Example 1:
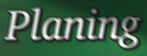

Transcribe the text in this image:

Planing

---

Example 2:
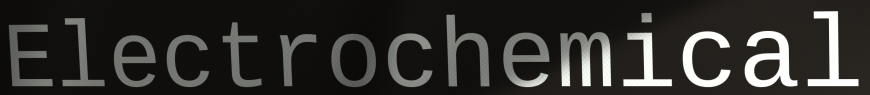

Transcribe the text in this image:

Electrochemical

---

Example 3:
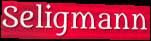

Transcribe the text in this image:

Seligmann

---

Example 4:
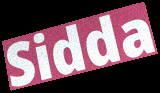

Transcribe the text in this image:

Sidda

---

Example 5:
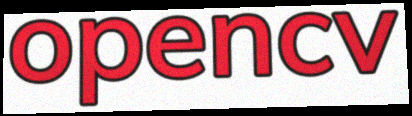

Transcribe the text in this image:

opencv